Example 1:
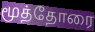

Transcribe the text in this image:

மூத்தோரை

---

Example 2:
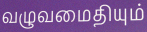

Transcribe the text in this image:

வழுவமைதியும்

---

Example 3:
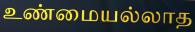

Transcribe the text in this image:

உண்மையல்லாத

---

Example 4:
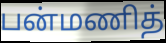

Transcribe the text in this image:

பன்மணித்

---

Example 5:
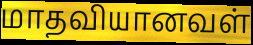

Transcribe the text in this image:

மாதவியானவள்